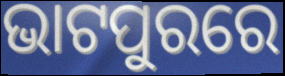
ଭାଟପୁରରେ